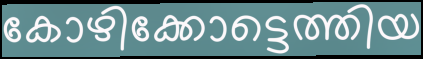
കോഴിക്കോട്ടെത്തിയ